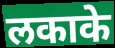
लकाके